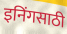
इनिंगसाठी